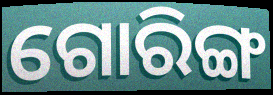
ଗୋରିଙ୍ଗ